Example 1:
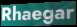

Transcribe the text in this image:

Rhaegar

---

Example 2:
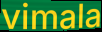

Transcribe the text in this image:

vimala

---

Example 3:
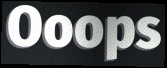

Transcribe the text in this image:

Ooops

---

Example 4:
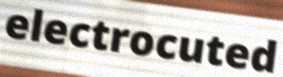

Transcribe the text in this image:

electrocuted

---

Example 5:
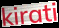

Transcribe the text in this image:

kirati